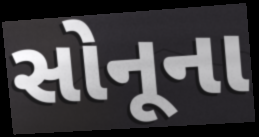
સોનૂના